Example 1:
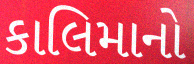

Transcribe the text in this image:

કાલિમાનો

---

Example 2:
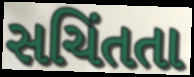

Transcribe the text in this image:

સચિંતતા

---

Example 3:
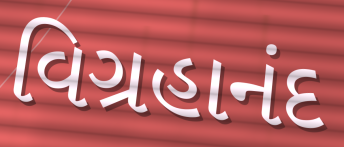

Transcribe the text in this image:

વિગ્રહાનંદ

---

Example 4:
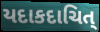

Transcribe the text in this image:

યદાકદાચિત્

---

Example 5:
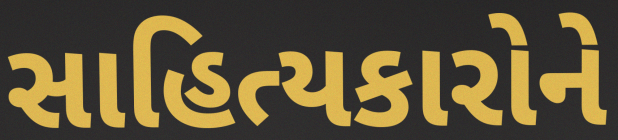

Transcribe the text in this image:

સાહિત્યકારોને